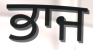
ਭਾਜ